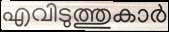
എവിടുത്തുകാർ